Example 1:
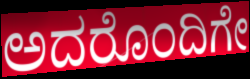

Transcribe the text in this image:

ಅದರೊಂದಿಗೇ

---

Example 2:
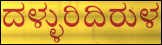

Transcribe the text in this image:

ದಳ್ಳುರಿದಿರುಳ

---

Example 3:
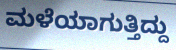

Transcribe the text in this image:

ಮಳೆಯಾಗುತ್ತಿದ್ದು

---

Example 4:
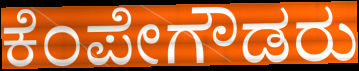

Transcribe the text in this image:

ಕೆಂಪೇಗೌಡರು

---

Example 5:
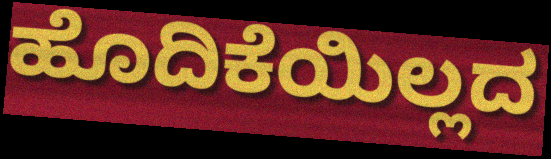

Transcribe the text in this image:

ಹೊದಿಕೆಯಿಲ್ಲದ